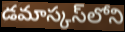
డమాస్కస్‌లోని